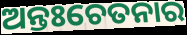
ଅନ୍ତଃଚେତନାର